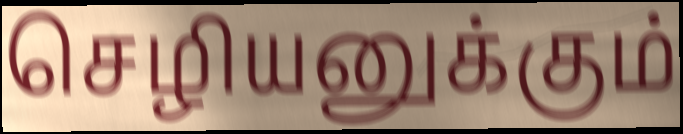
செழியனுக்கும்